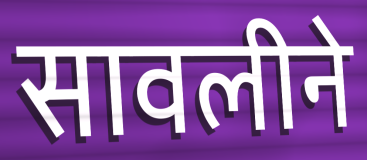
सावलीने